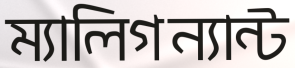
ম্যালিগন্যান্ট